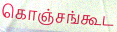
கொஞ்சங்கூட